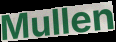
Mullen